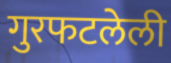
गुरफटलेली